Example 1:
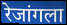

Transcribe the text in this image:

रेजांगला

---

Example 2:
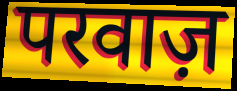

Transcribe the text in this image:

परवाज़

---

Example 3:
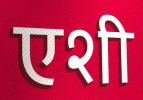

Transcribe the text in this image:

एशी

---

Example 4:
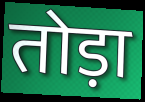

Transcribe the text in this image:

तोड़ा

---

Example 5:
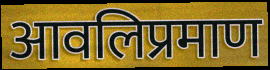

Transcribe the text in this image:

आवलिप्रमाण